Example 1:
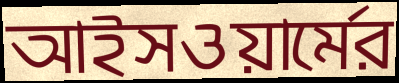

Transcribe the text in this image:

আইসওয়ার্মের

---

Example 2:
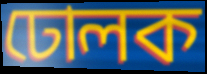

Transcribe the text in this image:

ঢোলক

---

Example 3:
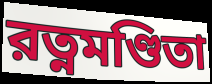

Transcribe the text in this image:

রত্নমণ্ডিতা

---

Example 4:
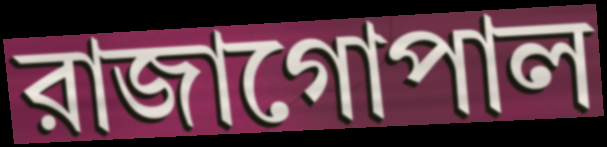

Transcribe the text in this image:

রাজাগোপাল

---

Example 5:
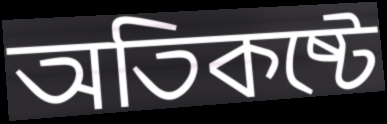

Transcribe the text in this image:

অতিকষ্টে